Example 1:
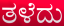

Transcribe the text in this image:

ತಳೆದು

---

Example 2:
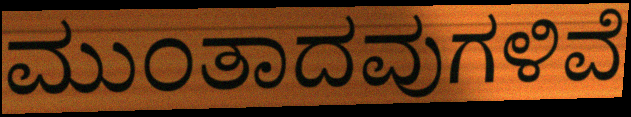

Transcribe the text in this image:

ಮುಂತಾದವುಗಳಿವೆ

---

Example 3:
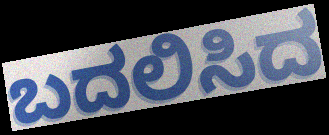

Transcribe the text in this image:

ಬದಲಿಸಿದ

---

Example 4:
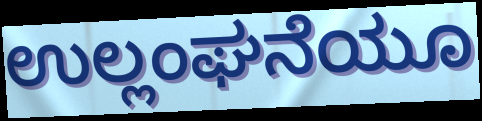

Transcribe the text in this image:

ಉಲ್ಲಂಘನೆಯೂ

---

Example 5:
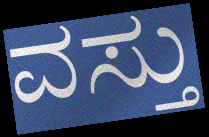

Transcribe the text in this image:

ವಸ್ತು